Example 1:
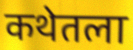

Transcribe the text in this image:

कथेतला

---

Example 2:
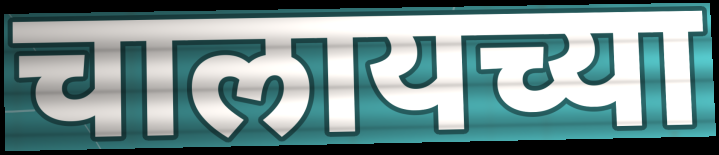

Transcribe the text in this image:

चालायच्या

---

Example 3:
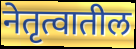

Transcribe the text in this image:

नेतृत्वातील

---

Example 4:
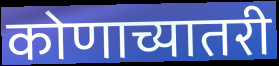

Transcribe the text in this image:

कोणाच्यातरी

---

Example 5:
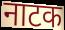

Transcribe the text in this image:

नाटक